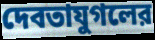
দেবতাযুগলের